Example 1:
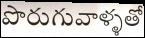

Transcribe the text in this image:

పొరుగువాళ్ళతో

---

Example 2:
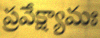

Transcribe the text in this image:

ప్రవేక్ష్యామః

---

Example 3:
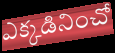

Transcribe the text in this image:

ఎక్కడినించో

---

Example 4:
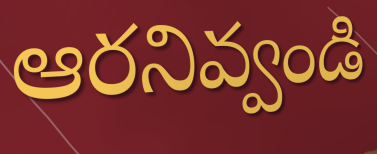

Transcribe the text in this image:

ఆరనివ్వండి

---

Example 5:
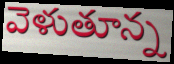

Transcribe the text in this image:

వెళుతూన్న